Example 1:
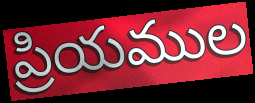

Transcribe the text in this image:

ప్రియముల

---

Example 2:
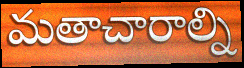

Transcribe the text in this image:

మతాచారాల్ని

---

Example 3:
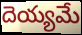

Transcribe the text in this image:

దెయ్యమే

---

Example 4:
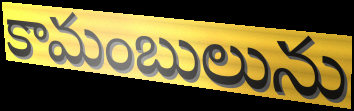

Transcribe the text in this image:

కామంబులును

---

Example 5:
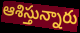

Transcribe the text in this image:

ఆశిస్తున్నారు